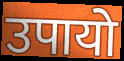
उपायो